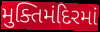
મુક્તિમંદિરમાં